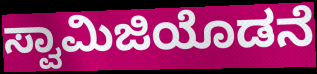
ಸ್ವಾಮಿಜಿಯೊಡನೆ